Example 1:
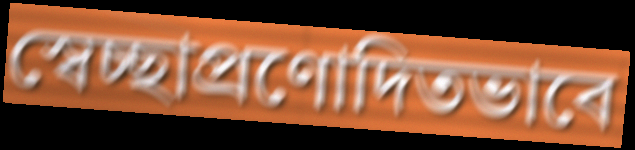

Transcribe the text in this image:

স্বেচ্ছাপ্রণোদিতভাবে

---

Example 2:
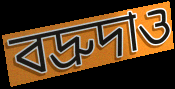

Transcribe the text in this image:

বদ্রুদাও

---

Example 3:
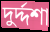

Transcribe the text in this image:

দুর্দ্দশা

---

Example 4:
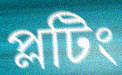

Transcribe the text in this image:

প্লটিং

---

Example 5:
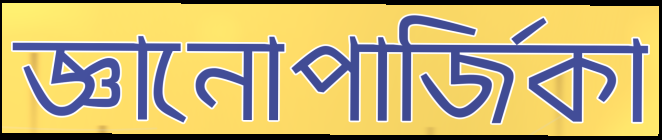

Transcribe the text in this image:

জ্ঞানোপার্জিকা